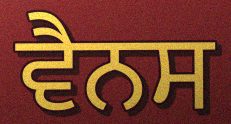
ਵੈਨਸ